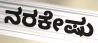
ನರಕೇಷು